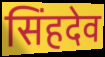
सिंहदेव